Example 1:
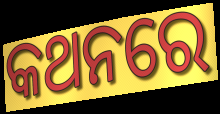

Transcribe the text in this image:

କଥନରେ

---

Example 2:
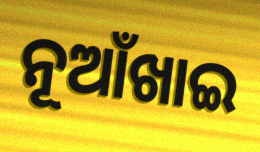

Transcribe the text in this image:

ନୂଆଁଖାଇ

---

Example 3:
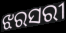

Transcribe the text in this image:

ଝରସରୀ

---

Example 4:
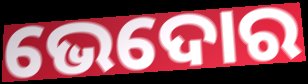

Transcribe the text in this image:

ଭେଦୋର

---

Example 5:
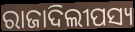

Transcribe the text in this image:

ରାଜାଦିଲୀପସ୍ୟ